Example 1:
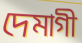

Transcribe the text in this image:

দেমাগী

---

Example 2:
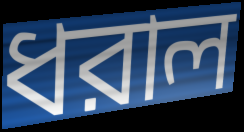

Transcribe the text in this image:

ধরাল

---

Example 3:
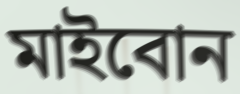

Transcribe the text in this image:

মাইবোন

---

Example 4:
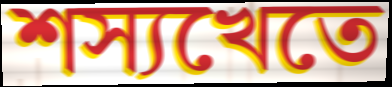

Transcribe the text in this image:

শস্যখেতে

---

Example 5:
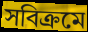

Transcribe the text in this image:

সবিক্রমে